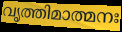
വൃത്തിമാത്മനഃ